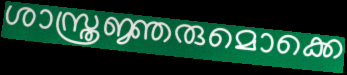
ശാസ്ത്രജ്ഞരുമൊക്കെ